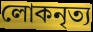
লোকনৃত্য